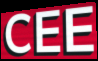
CEE